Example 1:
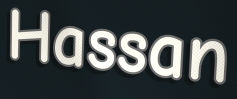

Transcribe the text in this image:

Hassan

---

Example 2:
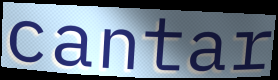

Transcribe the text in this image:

cantar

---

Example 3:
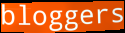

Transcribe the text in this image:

bloggers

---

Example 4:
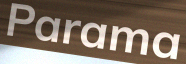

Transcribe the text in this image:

Parama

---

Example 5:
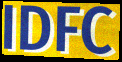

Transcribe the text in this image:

IDFC